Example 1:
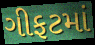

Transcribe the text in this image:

ગીફટમાં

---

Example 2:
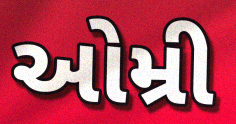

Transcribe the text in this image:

ઓમ્રી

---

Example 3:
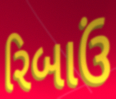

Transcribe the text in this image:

રિબાઉં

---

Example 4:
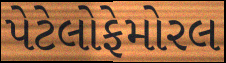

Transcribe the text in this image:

પેટેલોફેમોરલ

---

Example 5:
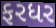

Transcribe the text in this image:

ફરધર